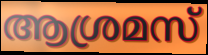
ആശ്രമസ്